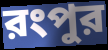
রংপুর